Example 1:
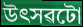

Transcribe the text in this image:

উৎসৱটো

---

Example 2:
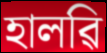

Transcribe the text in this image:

হালৱি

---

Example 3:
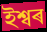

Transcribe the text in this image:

ইশ্বৰ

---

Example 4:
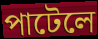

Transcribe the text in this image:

পাটেলে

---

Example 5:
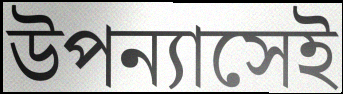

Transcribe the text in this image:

উপন্যাসেই